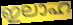
ഇലാഹ